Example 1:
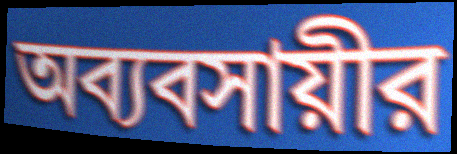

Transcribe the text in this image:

অব্যবসায়ীর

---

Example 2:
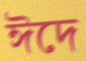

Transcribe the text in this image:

ঈদে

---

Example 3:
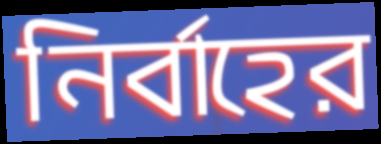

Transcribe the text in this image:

নির্বাহের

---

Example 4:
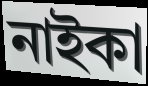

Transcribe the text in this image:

নাইকা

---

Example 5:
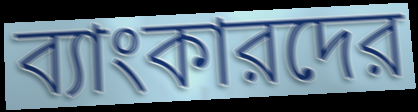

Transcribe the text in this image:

ব্যাংকারদের